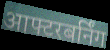
आफ्टरबर्निंग